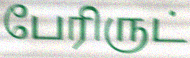
பேரிருட்